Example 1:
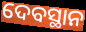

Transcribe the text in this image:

ଦେବସ୍ଥାନ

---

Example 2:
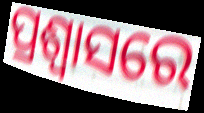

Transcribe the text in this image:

ପ୍ରଶ୍ବାସରେ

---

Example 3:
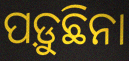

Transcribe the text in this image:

ପଡ଼ୁଛିନା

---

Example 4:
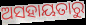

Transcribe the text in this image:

ଅସହାୟତାରୁ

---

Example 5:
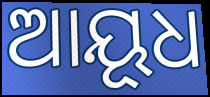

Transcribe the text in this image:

ଆୟୂଧ